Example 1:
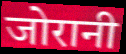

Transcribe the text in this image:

जोरानी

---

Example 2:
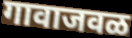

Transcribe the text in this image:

गावाजवळ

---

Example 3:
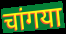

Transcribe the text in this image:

चांगया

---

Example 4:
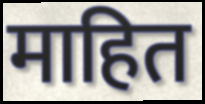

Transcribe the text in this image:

माहित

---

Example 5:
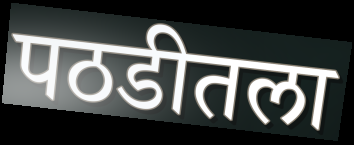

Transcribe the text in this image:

पठडीतला